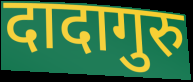
दादागुरु